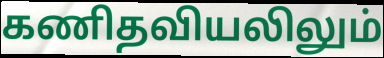
கணிதவியலிலும்